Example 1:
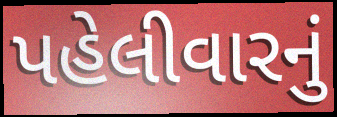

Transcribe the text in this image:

પહેલીવારનું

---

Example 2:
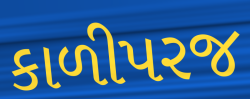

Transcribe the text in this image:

કાળીપરજ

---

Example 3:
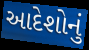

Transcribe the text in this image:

આદેશોનું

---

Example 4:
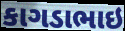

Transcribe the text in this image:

કાગડાભાઇ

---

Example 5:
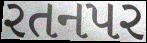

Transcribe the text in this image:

રતનપર